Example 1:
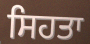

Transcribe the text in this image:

ਸਿਹਤਾ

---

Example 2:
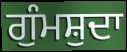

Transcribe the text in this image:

ਗੁੰਮਸ਼ੁਦਾ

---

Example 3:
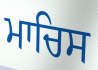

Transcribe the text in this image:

ਮਾਚਿਸ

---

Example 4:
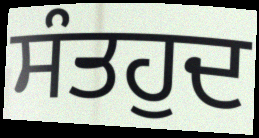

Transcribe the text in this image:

ਸੰਤਹੁਦ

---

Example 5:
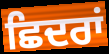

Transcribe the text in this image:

ਛਿਦਰਾਂ